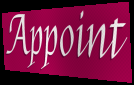
Appoint